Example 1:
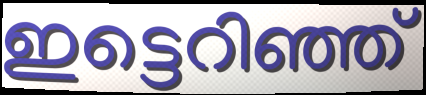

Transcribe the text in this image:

ഇട്ടെറിഞ്ഞ്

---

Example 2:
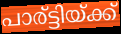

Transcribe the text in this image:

പാര്ട്ടിയ്ക്ക്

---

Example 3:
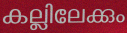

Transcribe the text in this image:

കല്ലിലേക്കും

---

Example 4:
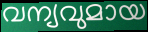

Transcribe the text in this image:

വന്യവുമായ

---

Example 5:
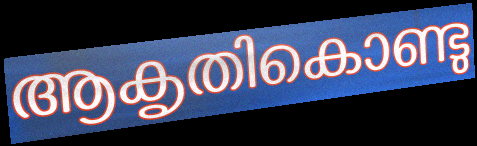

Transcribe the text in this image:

ആകൃതികൊണ്ടു